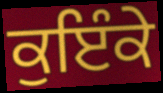
ਕੁਇੰਕੇ